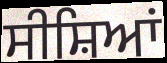
ਸੀਸ਼ਿਆਂ